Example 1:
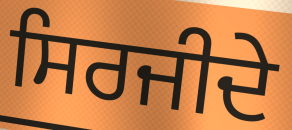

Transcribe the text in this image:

ਸਿਰਜੀਦੇ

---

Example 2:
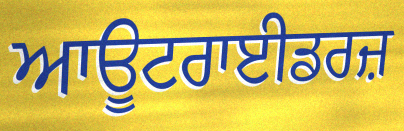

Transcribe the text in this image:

ਆਊਟਰਾਈਡਰਜ਼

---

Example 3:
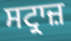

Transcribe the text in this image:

ਸਟ੍ਰਾਜ਼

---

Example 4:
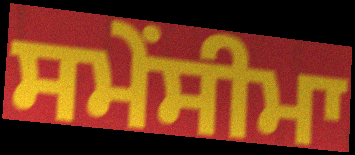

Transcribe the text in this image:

ਸਮੇਂਸੀਮਾ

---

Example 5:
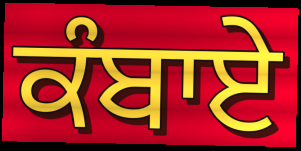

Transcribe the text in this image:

ਕੰਬਾਏ